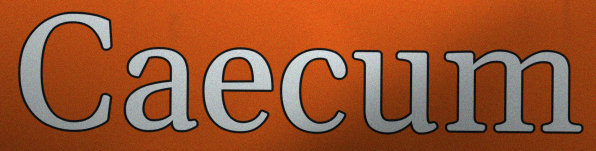
Caecum